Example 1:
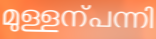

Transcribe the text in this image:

മുള്ളന്പന്നി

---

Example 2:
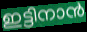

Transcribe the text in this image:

ഇട്ടിനാൻ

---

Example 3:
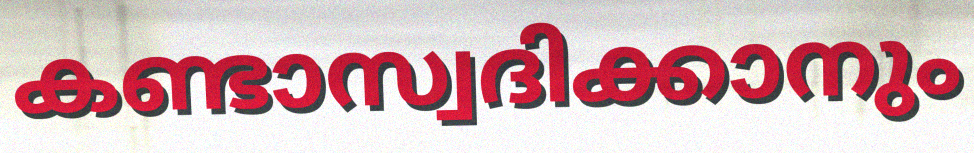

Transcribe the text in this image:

കണ്ടാസ്വദിക്കാനും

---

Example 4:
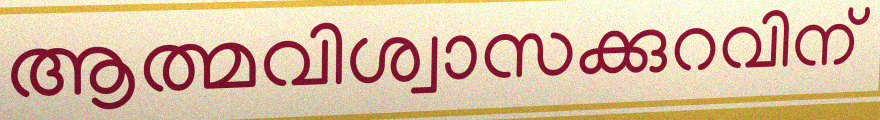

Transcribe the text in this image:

ആത്മവിശ്വാസക്കുറവിന്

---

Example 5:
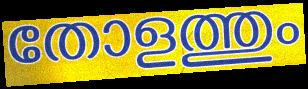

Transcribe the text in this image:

തോളത്തും